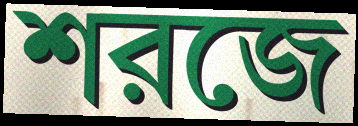
শরজে